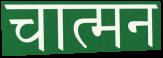
चात्मन